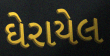
ઘેરાયેલ